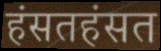
हंसतहंसत